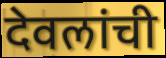
देवलांची